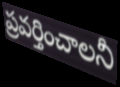
ప్రవర్తించాలనీ